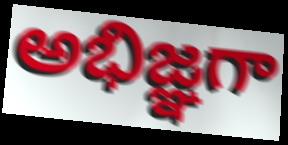
అభిజ్ఞగా